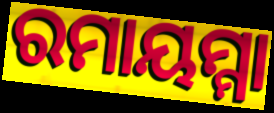
ରମାୟମ୍ମା